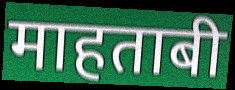
माहताबी